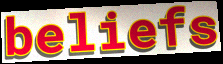
beliefs